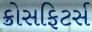
ક્રોસફિટર્સ